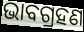
ଭାବଗ୍ରହଣ